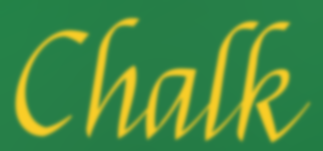
Chalk